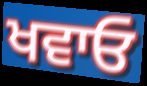
ਖਵਾਓ